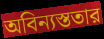
অবিন্যস্ততার